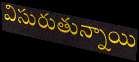
విసురుతున్నాయి